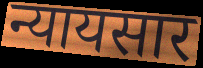
न्यायसार